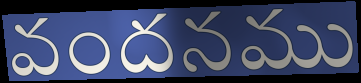
వందనము